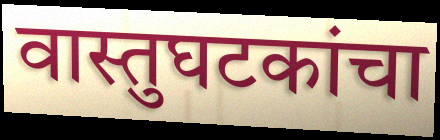
वास्तुघटकांचा